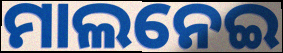
ମାଲନେଇ